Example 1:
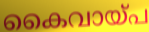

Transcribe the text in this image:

കൈവായ്പ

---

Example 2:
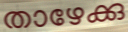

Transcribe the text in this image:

താഴേക്കു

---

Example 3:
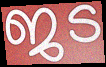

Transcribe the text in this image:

ജട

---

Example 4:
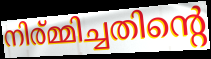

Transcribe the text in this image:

നിര്മ്മിച്ചതിന്റെ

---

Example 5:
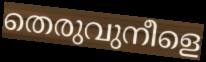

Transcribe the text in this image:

തെരുവുനീളെ